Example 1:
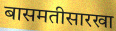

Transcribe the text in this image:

बासमतीसारखा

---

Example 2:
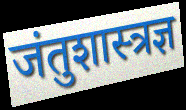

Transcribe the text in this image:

जंतुशास्त्रज्ञ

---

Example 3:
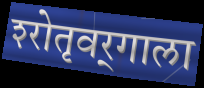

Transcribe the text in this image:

श्रोतृवर्गाला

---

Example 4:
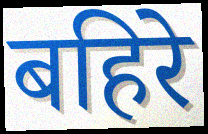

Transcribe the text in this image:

बहिरे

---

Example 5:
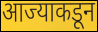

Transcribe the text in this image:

आज्याकडून